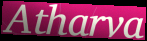
Atharva